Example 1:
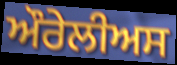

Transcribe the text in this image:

ਔਰੇਲੀਅਸ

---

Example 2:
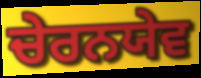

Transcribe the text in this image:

ਚੇਰਨਯੇਵ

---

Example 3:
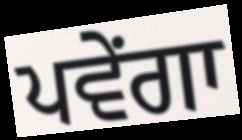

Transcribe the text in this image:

ਪਵੇਂਗਾ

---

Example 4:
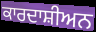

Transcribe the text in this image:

ਕਾਰਦਾਸ਼ੀਅਨ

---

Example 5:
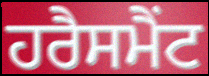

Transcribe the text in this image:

ਹਰੈਸਮੈਂਟ